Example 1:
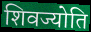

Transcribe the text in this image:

शिवज्योति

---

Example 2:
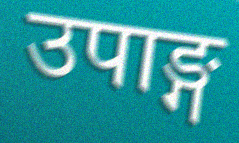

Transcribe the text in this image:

उपाङ्ग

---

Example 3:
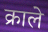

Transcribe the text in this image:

क्राले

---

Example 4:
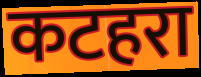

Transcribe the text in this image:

कटहरा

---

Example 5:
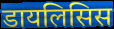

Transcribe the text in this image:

डायलिसिस